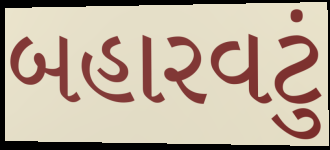
બહારવટું